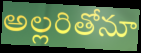
అల్లరితోనూ